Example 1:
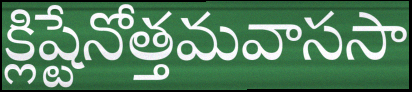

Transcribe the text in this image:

క్లిష్టేనోత్తమవాససా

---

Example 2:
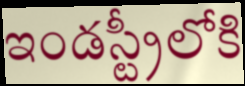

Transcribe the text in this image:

ఇండస్ట్రీలోకి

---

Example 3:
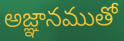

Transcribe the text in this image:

అజ్ఞానముతో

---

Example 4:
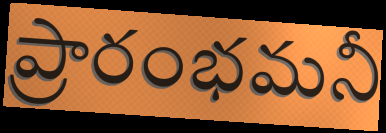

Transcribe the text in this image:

ప్రారంభమనీ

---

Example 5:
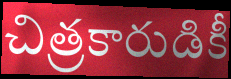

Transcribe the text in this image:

చిత్రకారుడికీ